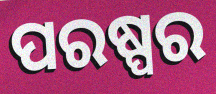
ପରଷ୍ପର